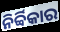
ନିର୍ବ୍ବିକାର